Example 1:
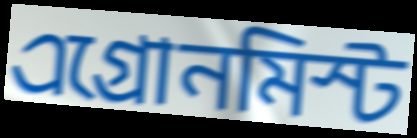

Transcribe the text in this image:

এগ্রোনমিস্ট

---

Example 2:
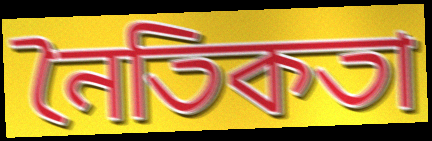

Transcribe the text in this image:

নৈতিকতা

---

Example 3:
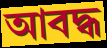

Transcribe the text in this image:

আবদ্ধ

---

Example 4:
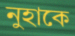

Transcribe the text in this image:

নুহাকে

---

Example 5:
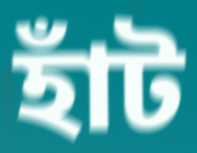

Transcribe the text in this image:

হাঁট